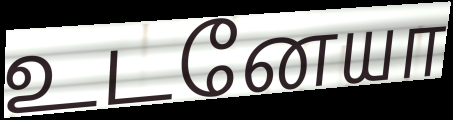
உடனேயா